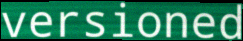
versioned